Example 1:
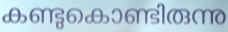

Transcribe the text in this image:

കണ്ടുകൊണ്ടിരുന്നു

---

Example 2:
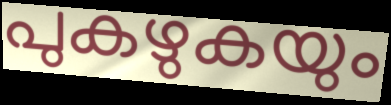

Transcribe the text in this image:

പുകഴുകയും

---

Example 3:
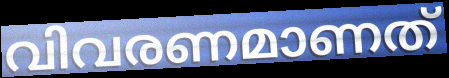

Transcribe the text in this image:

വിവരണമാണത്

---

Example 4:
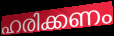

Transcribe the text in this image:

ഹരിക്കണം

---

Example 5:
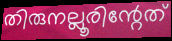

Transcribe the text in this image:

തിരുനല്ലൂരിന്റേത്